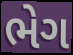
ભેગ